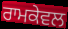
ਰਾਮਕੇਵਲ